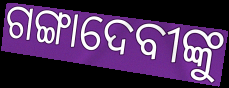
ଗଙ୍ଗାଦେବୀଙ୍କୁ